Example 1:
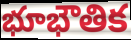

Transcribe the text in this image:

భూభౌతిక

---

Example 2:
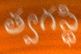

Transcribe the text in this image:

త్వగస్థి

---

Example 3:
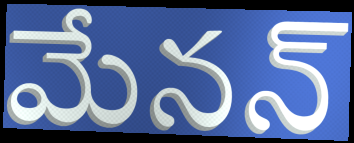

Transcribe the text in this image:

మేనన్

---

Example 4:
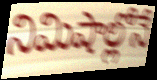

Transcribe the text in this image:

నిమిషాల్లోనే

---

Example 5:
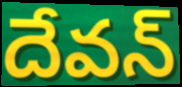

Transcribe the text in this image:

దేవన్